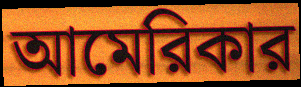
আমেরিকার